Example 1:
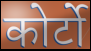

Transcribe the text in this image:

कोर्टो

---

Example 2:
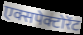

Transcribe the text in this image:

एक्सपेक्टोरेंट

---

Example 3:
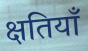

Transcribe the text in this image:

क्षतियाँ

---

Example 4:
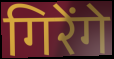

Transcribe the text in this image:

गिरेंगे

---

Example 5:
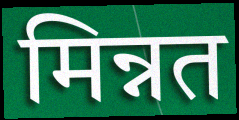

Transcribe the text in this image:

मिन्नत